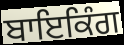
ਬਾਇਕਿੰਗ